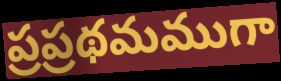
ప్రప్రథమముగా